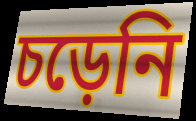
চড়েনি